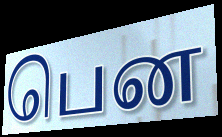
பென